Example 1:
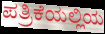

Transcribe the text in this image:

ಪತ್ರಿಕೆಯಲ್ಲಿಯ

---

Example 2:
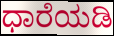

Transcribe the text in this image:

ಧಾರೆಯಡಿ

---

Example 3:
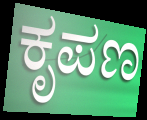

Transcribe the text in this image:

ಕೃಪಣ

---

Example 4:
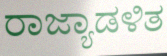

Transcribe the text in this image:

ರಾಜ್ಯಾಡಳಿತ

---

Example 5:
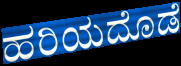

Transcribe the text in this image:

ಹರಿಯದೊಡೆ